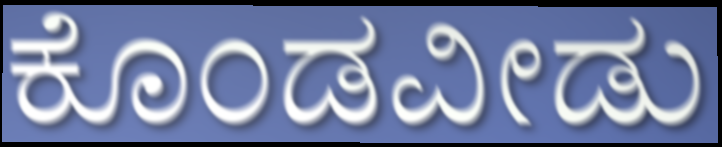
ಕೊಂಡವೀಡು